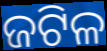
ଜଟିଳ